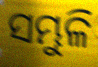
ସମ୍ଭୁଳି